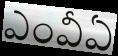
ఎంవీఏ